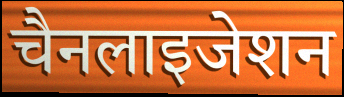
चैनलाइजेशन